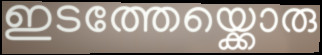
ഇടത്തേയ്ക്കൊരു